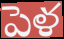
పెళ